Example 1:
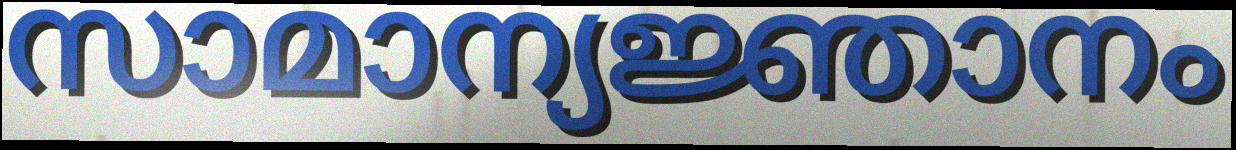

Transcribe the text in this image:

സാമാന്യജ്ഞാനം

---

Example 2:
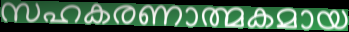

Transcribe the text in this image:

സഹകരണാത്മകമായ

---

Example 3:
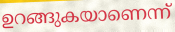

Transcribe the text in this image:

ഉറങ്ങുകയാണെന്ന്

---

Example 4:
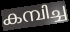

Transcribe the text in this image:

കമ്പിച്ച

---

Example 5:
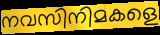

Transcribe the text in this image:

നവസിനിമകളെ